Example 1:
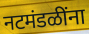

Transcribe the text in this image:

नटमंडळींना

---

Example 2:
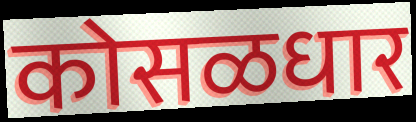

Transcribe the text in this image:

कोसळधार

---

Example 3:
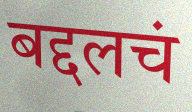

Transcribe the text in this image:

बद्दलचं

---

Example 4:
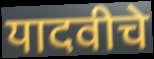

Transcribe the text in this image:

यादवीचे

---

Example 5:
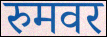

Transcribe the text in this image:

रुमवर